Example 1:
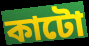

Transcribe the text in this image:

কাটো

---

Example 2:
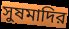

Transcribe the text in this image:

সুষমাদির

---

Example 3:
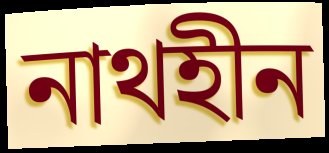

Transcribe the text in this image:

নাথহীন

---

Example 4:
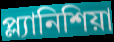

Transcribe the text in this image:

প্ল্যানিশিয়া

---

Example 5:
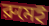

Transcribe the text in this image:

রুমেই